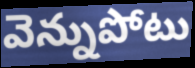
వెన్నుపోటు